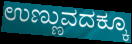
ಉಣ್ಣುವದಕ್ಕೂ